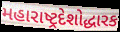
મહારાષ્ટ્રદેશોદ્ધારક